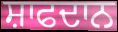
ਸ਼ਾਫਦਾਨ